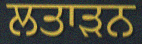
ਲਤਾੜਨ